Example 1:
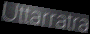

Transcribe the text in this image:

Uttarratra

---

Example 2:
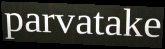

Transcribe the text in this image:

parvatake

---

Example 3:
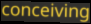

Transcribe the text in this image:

conceiving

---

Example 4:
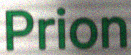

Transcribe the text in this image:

Prion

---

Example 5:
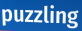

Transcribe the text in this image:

puzzling